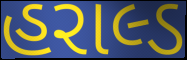
હરાલ્ડ